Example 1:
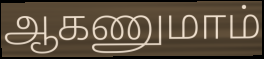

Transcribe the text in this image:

ஆகணுமாம்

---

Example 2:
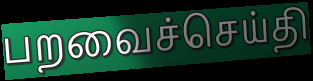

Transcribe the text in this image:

பறவைச்செய்தி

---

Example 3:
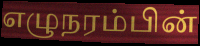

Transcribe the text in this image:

எழுநரம்பின்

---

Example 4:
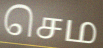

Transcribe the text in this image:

செம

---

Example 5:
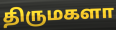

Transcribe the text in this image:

திருமகளா